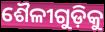
ଶୈଳୀଗୁଡ଼ିକୁ